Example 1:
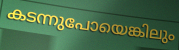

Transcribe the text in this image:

കടന്നുപോയെങ്കിലും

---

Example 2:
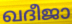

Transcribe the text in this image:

ഖദീജാ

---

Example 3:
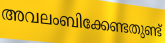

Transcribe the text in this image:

അവലംബിക്കേണ്ടതുണ്ട്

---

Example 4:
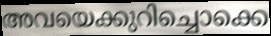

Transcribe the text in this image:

അവയെക്കുറിച്ചൊക്കെ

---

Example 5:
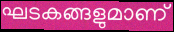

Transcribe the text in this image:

ഘടകങ്ങളുമാണ്